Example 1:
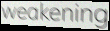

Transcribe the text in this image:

weakening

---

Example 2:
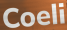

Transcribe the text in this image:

Coeli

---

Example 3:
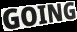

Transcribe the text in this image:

GOING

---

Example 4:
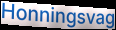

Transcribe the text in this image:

Honningsvag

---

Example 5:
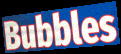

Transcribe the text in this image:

Bubbles